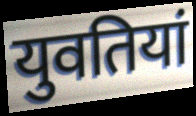
युवतियां